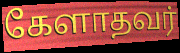
கேளாதவர்